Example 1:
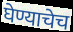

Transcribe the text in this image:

घेण्याचेच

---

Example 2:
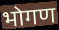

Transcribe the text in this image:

भोगण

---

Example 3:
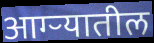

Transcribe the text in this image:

आग्ऱ्यातील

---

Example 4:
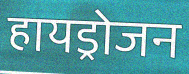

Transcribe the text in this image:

हायड्रोजन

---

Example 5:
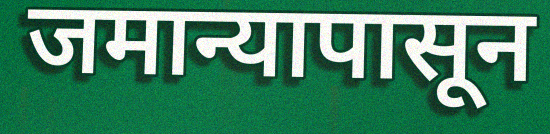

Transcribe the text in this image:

जमान्यापासून